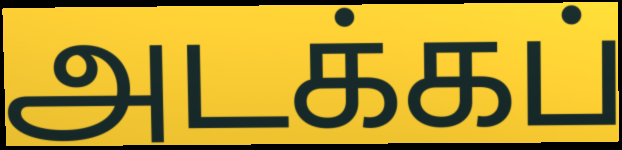
அடக்கப்